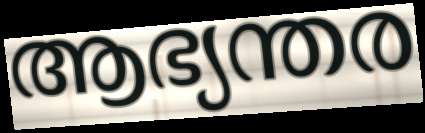
ആഭ്യന്തര